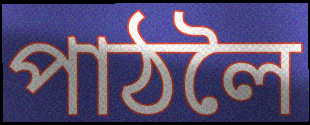
পাঠলৈ